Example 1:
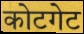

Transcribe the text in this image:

कोटगेट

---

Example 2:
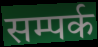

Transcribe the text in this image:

सम्पर्क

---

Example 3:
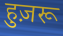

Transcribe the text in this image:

हुज़रू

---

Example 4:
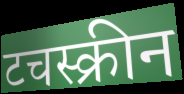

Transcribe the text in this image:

टचस्क्रीन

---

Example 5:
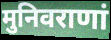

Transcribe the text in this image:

मुनिवराणां